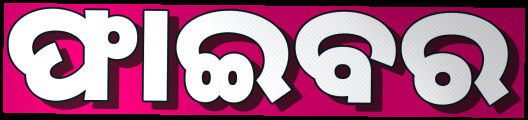
ଫାଇବର